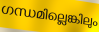
ഗന്ധമില്ലെങ്കിലും